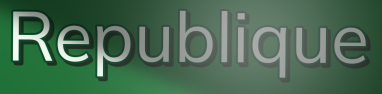
Republique